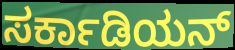
ಸರ್ಕಾಡಿಯನ್